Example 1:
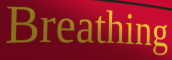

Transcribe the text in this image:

Breathing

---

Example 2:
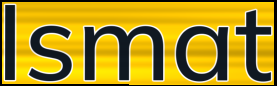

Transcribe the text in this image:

Ismat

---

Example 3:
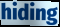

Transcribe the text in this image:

hiding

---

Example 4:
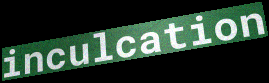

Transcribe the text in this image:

inculcation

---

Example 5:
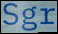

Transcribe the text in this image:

Sgr